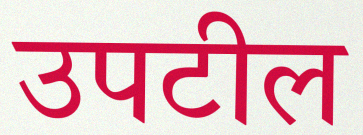
उपटील